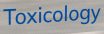
Toxicology